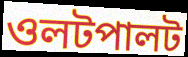
ওলটপালট